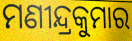
ମଣୀନ୍ଦ୍ରକୁମାର